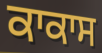
ਕਾਕਾਸ